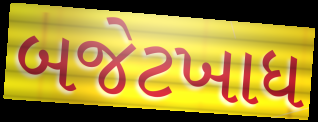
બજેટખાધ